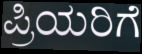
ಪ್ರಿಯರಿಗೆ